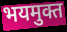
भयमुक्त